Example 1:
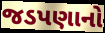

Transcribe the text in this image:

જડપણાનો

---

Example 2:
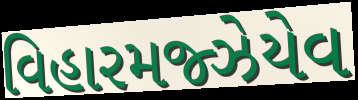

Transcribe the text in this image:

વિહારમજ્ઝેયેવ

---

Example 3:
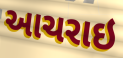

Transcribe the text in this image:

આચરાઇ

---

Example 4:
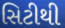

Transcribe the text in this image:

સિટીથી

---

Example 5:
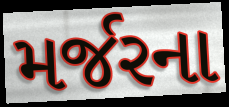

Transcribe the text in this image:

મર્જરના